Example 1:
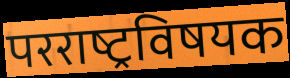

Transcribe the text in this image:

परराष्ट्रविषयक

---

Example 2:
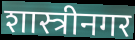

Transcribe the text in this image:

शास्त्रीनगर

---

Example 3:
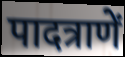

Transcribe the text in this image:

पादत्राणें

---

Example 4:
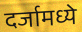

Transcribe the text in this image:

दर्जामध्ये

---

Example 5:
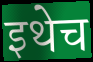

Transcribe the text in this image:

इथेच